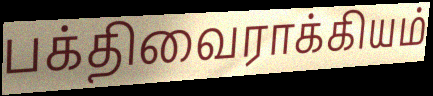
பக்திவைராக்கியம்